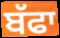
ਬੱਫਾ